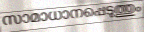
സാമാധാനപ്പെടുത്തും